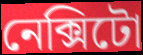
নেক্সিটো